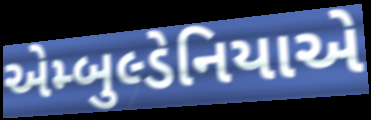
એમ્બુલ્ડેનિયાએ